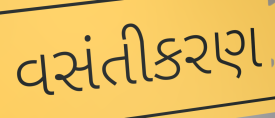
વસંતીકરણ